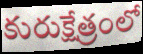
కురుక్షేత్రంలో